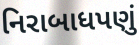
નિરાબાધપણું